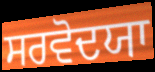
ਸਰਵੋਦਯਾ